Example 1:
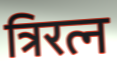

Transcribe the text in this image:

त्रिरत्न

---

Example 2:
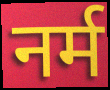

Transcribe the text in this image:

नर्म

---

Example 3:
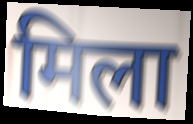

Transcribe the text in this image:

मिला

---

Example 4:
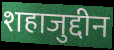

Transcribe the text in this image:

शहाजुद्दीन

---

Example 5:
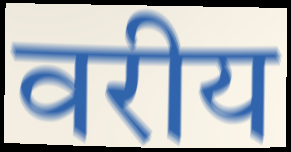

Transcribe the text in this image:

वरीय